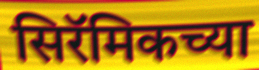
सिरॅमिकच्या